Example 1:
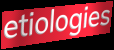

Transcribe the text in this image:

etiologies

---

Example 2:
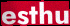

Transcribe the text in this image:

esthu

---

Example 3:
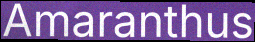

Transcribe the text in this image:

Amaranthus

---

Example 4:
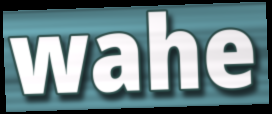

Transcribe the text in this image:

wahe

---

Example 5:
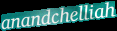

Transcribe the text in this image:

anandchelliah